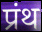
प्रंथ